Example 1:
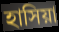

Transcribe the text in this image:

হাসিয়া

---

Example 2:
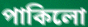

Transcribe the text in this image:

পাকিলো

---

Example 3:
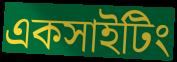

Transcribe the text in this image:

একসাইটিং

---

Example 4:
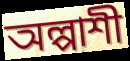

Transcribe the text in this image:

অল্পাশী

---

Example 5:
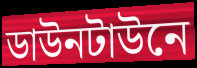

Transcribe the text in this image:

ডাউনটাউনে